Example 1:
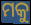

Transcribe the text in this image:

ମକୁ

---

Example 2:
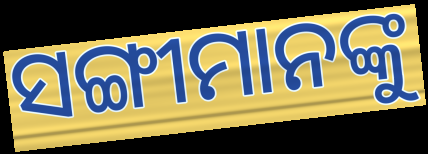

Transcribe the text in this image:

ସଙ୍ଗୀମାନଙ୍କୁ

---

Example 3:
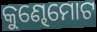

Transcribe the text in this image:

କୁଣ୍ଢେମୋଟ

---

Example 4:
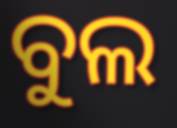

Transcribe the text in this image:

ବୁଲ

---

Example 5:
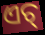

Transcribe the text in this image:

ଏଚ୍